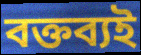
বক্তব্যই